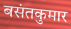
बसंतकुमार